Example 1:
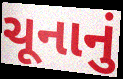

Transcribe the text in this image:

ચૂનાનું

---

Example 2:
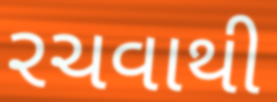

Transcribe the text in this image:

રચવાથી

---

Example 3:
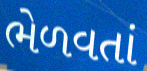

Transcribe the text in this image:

ભેળવતાં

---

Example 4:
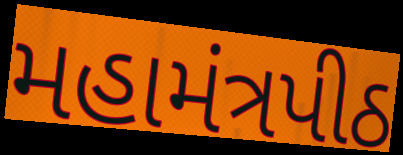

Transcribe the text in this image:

મહામંત્રપીઠ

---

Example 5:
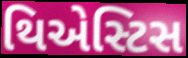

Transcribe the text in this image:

થિએસ્ટિસ